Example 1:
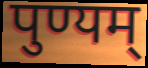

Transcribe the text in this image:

पुण्यम्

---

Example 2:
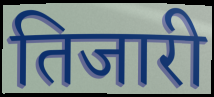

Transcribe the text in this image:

तिजारी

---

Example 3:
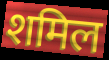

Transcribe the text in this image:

शमिल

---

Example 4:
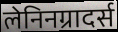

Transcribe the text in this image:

लेनिनग्रादर्स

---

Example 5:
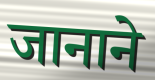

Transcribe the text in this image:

जानाने